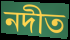
নদীত